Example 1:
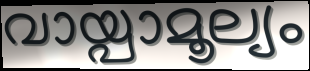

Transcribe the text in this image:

വായ്പാമൂല്യം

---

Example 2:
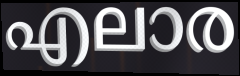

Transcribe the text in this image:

എലാര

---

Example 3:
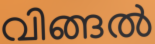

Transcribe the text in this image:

വിങ്ങൽ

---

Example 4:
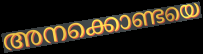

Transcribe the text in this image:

അനക്കൊണ്ടയെ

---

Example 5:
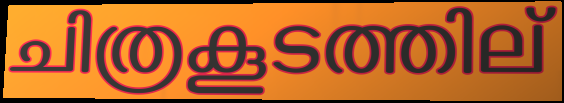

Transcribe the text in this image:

ചിത്രകൂടത്തില്